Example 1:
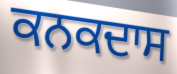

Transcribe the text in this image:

ਕਨਕਦਾਸ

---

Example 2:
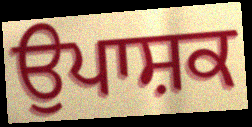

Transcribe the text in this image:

ਉਪਾਸ਼ਕ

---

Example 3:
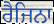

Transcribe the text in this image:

ਰੈਜਿਨਾ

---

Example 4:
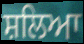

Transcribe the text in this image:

ਸ਼ਲਿਆ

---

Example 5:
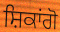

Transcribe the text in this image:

ਸ਼ਿਕਾਂਗੋ